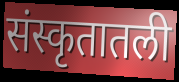
संस्कृतातली